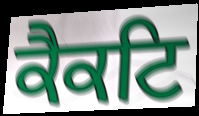
ਕੈਕਟਿ